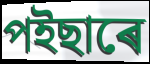
পইছাৰে